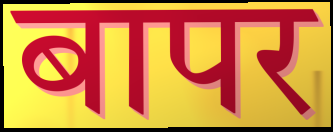
बापर